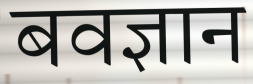
बवज्ञान